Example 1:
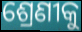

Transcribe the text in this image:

ଶ୍ରେଣୀକୁ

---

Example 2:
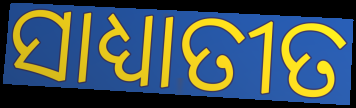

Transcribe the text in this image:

ସାଧ୍ୟାତୀତ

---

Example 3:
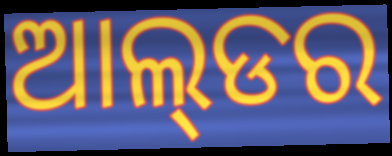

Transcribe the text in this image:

ଆଲ୍‌ଡର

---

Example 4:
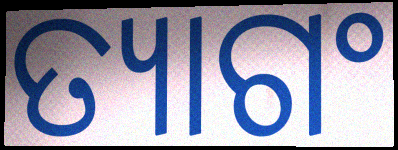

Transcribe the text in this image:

ତ୍ୟାଗଂ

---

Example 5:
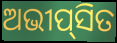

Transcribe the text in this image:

ଅଭୀପ୍‌ସିତ